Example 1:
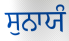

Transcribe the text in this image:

ਸੁਨਾਯੰ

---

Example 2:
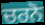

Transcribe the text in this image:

ਚਰਨੋ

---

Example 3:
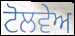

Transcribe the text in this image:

ਟੋਲਵੇਅ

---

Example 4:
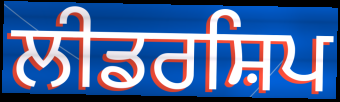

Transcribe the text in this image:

ਲੀਡਰਸ਼ਿਪ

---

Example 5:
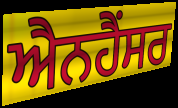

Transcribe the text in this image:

ਐਨਹੈਂਸਰ